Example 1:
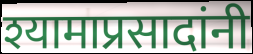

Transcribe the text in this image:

श्यामाप्रसादांनी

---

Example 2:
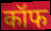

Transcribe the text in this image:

कॉफ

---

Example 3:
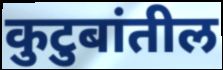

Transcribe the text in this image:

कुटुबांतील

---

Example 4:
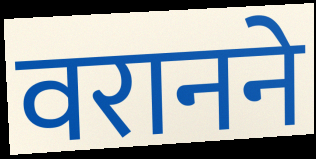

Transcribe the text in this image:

वरानने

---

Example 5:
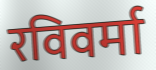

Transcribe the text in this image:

रविवर्मा